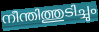
നീന്തിത്തുടിച്ചും